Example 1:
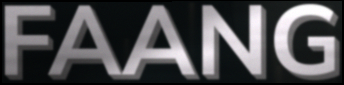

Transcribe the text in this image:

FAANG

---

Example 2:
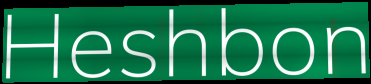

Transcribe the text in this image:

Heshbon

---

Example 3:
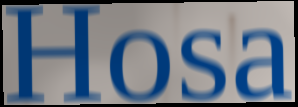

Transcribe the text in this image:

Hosa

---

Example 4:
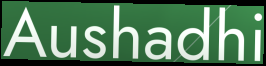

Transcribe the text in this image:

Aushadhi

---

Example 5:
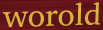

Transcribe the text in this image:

worold